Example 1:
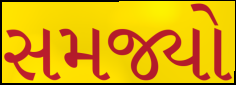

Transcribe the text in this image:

સમજ્યો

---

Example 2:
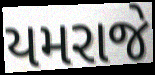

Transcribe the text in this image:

યમરાજે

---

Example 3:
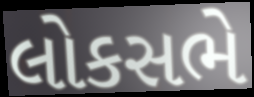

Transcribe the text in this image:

લોકસભે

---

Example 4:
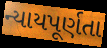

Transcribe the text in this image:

ન્યાયપૂર્ણતા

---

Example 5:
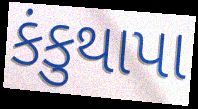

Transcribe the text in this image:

કંકુથાપા